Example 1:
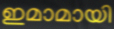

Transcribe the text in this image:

ഇമാമായി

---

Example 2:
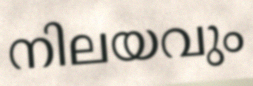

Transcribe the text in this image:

നിലയവും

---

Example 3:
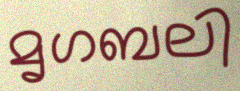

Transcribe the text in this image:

മൃഗബലി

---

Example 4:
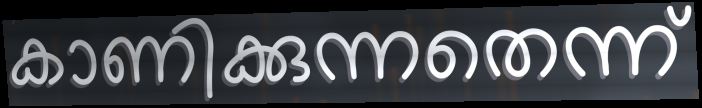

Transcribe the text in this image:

കാണിക്കുന്നതെന്ന്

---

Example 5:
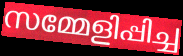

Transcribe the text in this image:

സമ്മേളിപ്പിച്ച